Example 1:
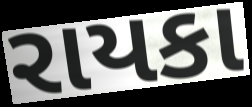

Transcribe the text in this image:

રાયકા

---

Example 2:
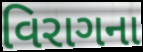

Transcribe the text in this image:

વિરાગના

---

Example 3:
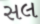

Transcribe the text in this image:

સલ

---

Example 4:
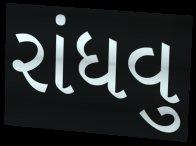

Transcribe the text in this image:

રાંધવુ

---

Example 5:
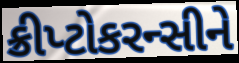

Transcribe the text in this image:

ક્રીપ્ટોકરન્સીને